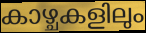
കാഴ്ചകളിലും